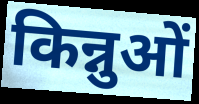
किन्नुओं